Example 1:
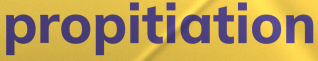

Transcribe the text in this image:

propitiation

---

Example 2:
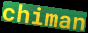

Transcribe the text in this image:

chiman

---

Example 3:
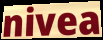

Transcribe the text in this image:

nivea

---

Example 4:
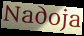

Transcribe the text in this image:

Nadoja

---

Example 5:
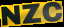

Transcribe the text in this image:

NZC